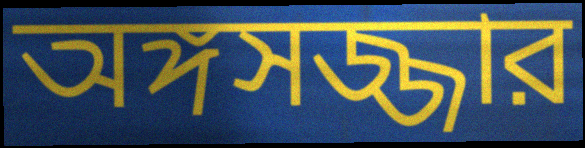
অঙ্গসজ্জার